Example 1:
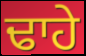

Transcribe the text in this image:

ਢਾਹੇ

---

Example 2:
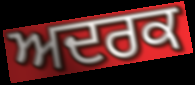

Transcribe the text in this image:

ਅਦਰਕ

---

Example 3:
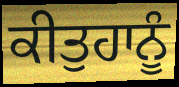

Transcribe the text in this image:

ਕੀਤੁਹਾਨੂੰ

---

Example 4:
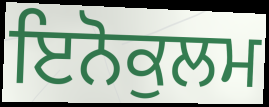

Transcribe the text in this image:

ਇਨੋਕੁਲਮ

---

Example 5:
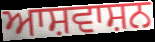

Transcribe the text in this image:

ਆਸ਼ਵਾਸ਼ਨ